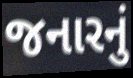
જનારનું